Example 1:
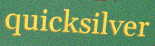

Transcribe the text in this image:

quicksilver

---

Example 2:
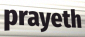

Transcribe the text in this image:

prayeth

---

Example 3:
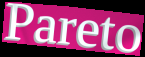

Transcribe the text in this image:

Pareto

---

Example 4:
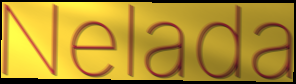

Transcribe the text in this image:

Nelada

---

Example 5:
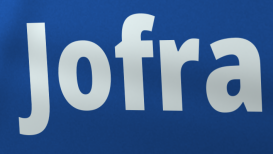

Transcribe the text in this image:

Jofra